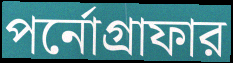
পর্নোগ্রাফার